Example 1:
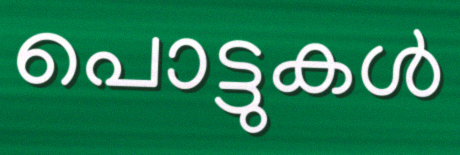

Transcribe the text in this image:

പൊട്ടുകൾ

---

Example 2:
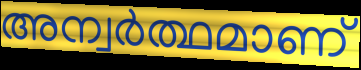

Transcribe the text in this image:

അന്വർത്ഥമാണ്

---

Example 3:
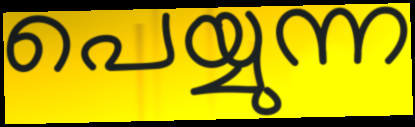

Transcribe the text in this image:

പെയ്യുന്ന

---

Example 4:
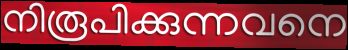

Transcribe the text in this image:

നിരൂപിക്കുന്നവനെ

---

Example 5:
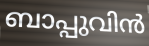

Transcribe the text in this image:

ബാപ്പുവിൻ